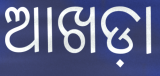
ଆଖଡ଼ା